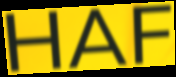
HAF